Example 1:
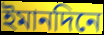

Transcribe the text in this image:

ইমানদিনে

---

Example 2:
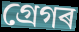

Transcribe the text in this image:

গ্ৰেগৰ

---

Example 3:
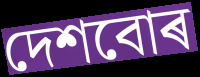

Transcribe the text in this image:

দেশবোৰ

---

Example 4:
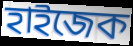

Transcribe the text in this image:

হাইজেক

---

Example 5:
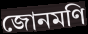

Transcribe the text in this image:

জোনমণি